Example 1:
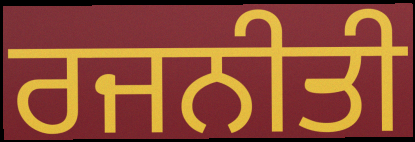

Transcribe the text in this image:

ਰਜਨੀਤੀ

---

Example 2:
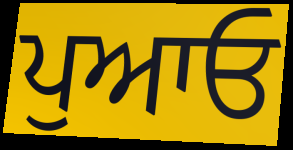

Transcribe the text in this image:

ਪੁਆਓ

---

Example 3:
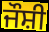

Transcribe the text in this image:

ਜੌਸ਼ੀ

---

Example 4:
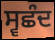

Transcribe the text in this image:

ਸ੍ਵਛੰਦ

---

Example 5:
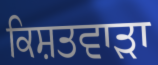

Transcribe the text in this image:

ਕਿਸ਼ਤਵਾੜਾ